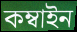
কম্বাইন